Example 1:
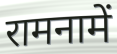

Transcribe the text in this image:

रामनामें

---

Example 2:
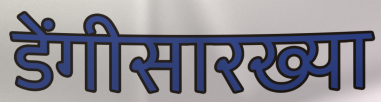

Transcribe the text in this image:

डेंगीसारख्या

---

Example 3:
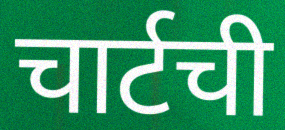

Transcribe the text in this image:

चार्टची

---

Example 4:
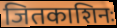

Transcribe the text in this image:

जितकाशिनः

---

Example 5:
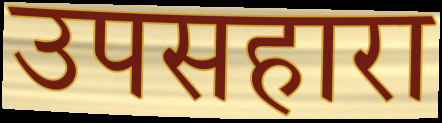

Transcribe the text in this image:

उपसहारा